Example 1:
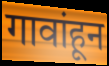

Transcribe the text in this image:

गावांहून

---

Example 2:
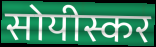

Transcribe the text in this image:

सोयीस्कर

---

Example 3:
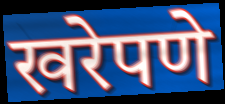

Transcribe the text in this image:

खरेपणे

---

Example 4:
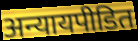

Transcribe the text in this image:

अन्यायपीडित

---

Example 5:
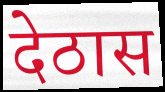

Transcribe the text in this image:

देठास